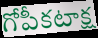
గోపీకటాక్ష